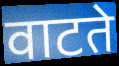
वाटते